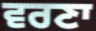
ਵਰਣਾ